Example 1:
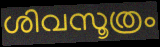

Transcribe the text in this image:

ശിവസൂത്രം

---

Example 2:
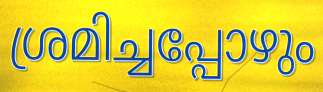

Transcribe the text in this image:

ശ്രമിച്ചപ്പോഴും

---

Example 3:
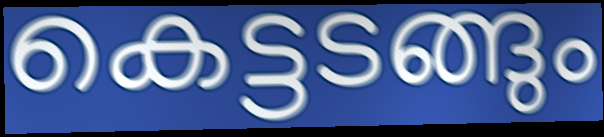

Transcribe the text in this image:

കെട്ടടങ്ങും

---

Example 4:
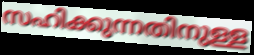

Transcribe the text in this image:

സഹിക്കുന്നതിനുള്ള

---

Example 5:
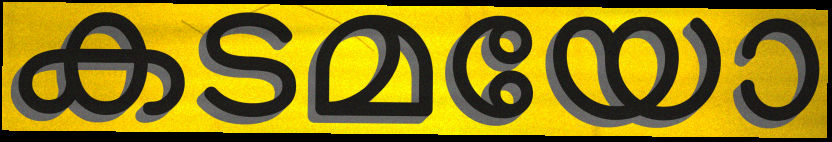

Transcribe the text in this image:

കടമയോ